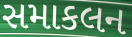
સમાકલન